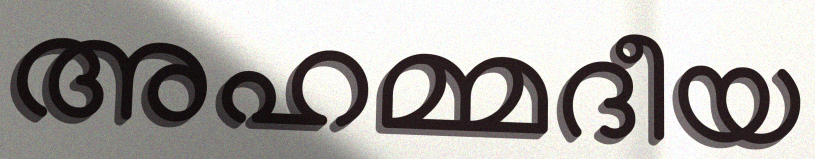
അഹമ്മദീയ